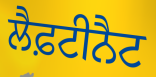
ਲੈਫ਼ਟੀਨੈਟ